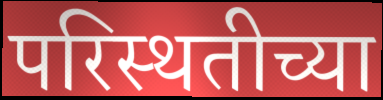
परिस्थतीच्या